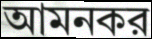
আমনকর